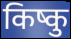
किष्कु